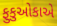
ફુકુઓકાએ